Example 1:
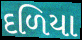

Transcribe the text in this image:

દળિયા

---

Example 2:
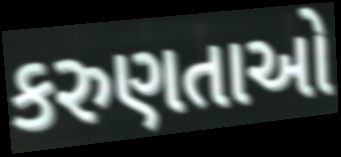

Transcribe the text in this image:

કરુણતાઓ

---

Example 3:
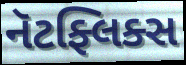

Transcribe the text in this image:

નૅટફ્લિક્સ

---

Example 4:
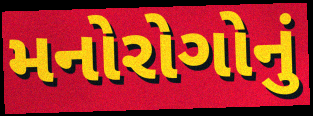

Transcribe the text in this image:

મનોરોગોનું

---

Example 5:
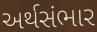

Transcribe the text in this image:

અર્થસંભાર